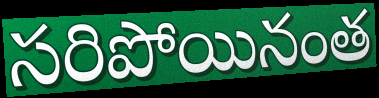
సరిపోయినంత